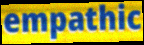
empathic